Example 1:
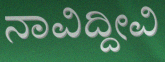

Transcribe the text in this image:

ನಾವಿದ್ದೀವಿ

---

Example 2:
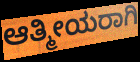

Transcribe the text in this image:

ಆತ್ಮೀಯರಾಗಿ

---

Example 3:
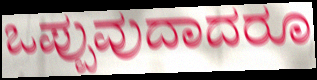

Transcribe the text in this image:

ಒಪ್ಪುವುದಾದರೂ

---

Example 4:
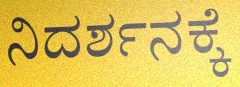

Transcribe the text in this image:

ನಿದರ್ಶನಕ್ಕೆ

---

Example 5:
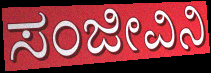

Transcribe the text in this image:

ಸಂಜೀವಿನಿ